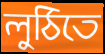
লুঠিতে